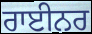
ਰਾਈਨਰ